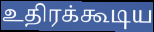
உதிரக்கூடிய